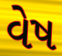
વેષ